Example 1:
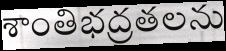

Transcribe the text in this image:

శాంతిభద్రతలను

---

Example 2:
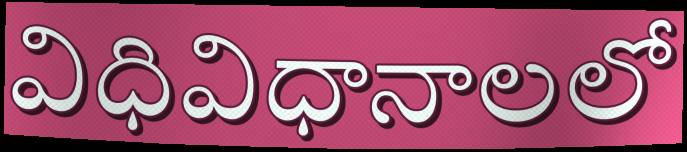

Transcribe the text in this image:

విధివిధానాలలో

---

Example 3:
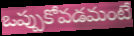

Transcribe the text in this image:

ఒప్పుకోవడమంటే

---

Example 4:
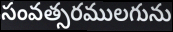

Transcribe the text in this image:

సంవత్సరములగును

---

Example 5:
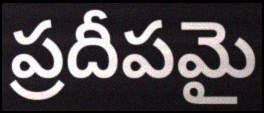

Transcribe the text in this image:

ప్రదీపమై